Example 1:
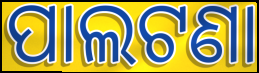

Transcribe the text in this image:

ପାଲଟଣା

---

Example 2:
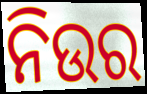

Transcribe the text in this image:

ନିଉର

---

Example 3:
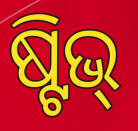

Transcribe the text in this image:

ଷ୍ଟିଭ୍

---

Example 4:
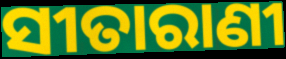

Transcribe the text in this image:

ସୀତାରାଣୀ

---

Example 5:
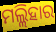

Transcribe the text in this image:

ମଲ୍ଲିହାର